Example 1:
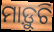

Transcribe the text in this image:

ମାଡ଼ୁଚି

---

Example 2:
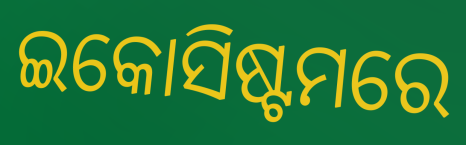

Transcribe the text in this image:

ଇକୋସିଷ୍ଟମରେ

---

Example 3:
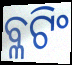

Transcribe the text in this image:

ବ୍ଳଟିଂ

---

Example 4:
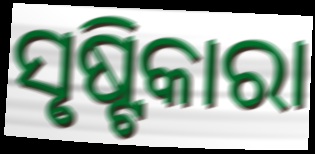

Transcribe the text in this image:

ସୃଷ୍ଟିକାରା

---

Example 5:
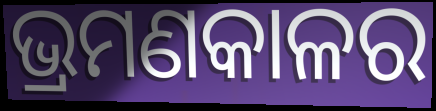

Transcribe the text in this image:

ଭ୍ରମଣକାଳର